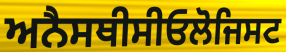
ਅਨੈਸਥੀਸੀਓਲੋਜਿਸਟ